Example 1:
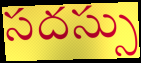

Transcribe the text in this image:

సదస్సు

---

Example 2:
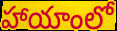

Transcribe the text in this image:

హాయాంలో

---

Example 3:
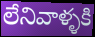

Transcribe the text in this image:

లేనివాళ్ళకి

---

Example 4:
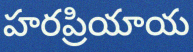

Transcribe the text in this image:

హరప్రియాయ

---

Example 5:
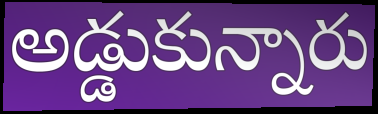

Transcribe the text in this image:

అడ్డుకున్నారు